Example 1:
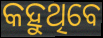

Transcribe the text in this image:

କହୁଥିବେ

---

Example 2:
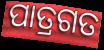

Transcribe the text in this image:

ପାତ୍ରଗତ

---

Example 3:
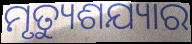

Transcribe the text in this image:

ମୃତ୍ୟୁଶଯ୍ୟାର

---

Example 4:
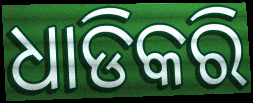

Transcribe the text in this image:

ଧାଡିକରି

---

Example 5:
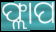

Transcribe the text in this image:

ଫ୍ଲାପ